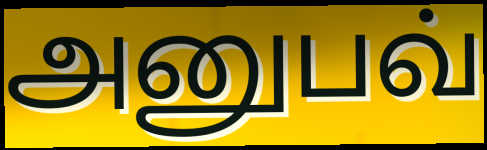
அனுபவ்